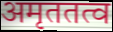
अमृततत्व